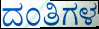
ದಂತಿಗಳ